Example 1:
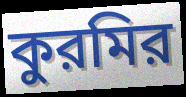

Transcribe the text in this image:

কুরমির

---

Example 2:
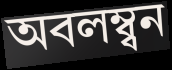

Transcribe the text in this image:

অবলম্ব্বন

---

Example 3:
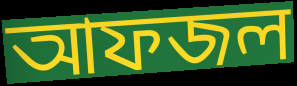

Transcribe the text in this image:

আফজল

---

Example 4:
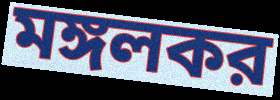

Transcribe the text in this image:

মঙ্গলকর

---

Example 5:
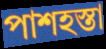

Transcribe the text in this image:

পাশহস্তা